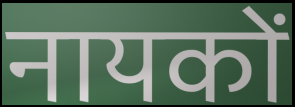
नायकों